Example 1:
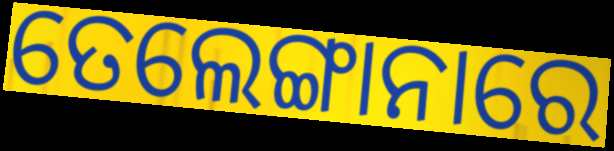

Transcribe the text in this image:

ତେଲେଙ୍ଗାନାରେ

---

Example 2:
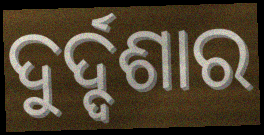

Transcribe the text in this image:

ଦୁର୍ଦ୍ଦଶାର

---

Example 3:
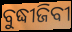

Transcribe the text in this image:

ବୁଦ୍ଧୀଜିବୀ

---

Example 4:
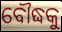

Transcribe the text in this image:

ବୌଦ୍ଧକୁ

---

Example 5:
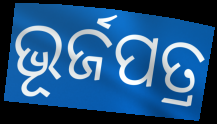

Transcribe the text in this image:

ଭୂର୍ଜପତ୍ର